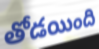
తోడయింది